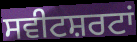
ਸਵੀਟਸ਼ਰਟਾਂ